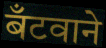
बँटवाने